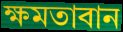
ক্ষমতাবান